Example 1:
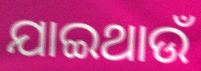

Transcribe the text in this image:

ଯାଇଥାଉଁ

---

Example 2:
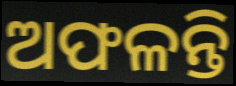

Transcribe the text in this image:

ଅଫଳନ୍ତି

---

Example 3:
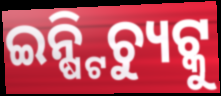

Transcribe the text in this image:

ଇନ୍ଷ୍ଟିଚ୍ୟୁଟ୍କୁ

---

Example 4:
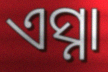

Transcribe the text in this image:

ଏସ୍ନା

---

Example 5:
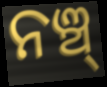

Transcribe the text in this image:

ନଞ୍ଚ୍